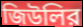
জিউলির